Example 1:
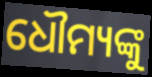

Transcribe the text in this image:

ଧୌମ୍ୟଙ୍କୁ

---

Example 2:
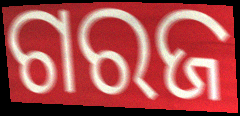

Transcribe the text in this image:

ଗରଜ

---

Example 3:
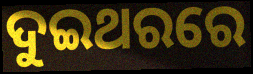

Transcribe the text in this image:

ଦୁଇଥରରେ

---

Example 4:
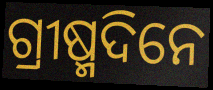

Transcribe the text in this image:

ଗ୍ରୀଷ୍ମଦିନେ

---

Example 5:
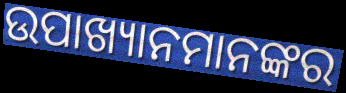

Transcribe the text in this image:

ଉପାଖ୍ୟାନମାନଙ୍କର